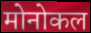
मोनोकल